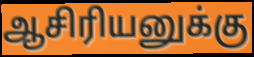
ஆசிரியனுக்கு